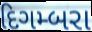
દિગમ્બરા